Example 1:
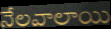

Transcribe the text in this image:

నేలవాలాయి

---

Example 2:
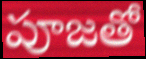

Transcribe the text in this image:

పూజతో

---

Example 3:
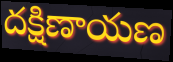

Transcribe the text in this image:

దక్షిణాయణ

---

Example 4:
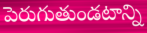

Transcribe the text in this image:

పెరుగుతుండటాన్ని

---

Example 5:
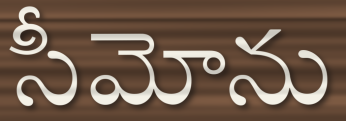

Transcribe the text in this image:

సీమోను